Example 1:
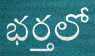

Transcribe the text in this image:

భర్తలో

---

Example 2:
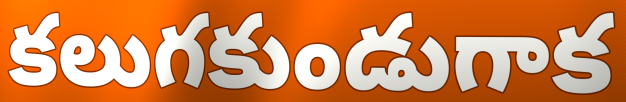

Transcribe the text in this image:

కలుగకుండుగాక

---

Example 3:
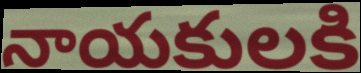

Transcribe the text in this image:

నాయకులకి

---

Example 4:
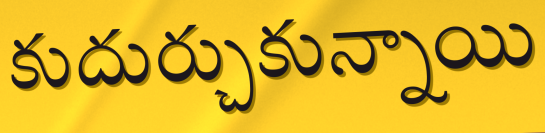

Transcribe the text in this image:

కుదుర్చుకున్నాయి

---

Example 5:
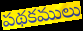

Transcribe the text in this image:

పథకములు